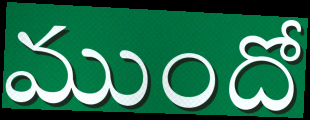
ముందో